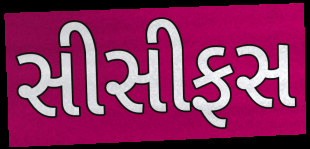
સીસીફસ